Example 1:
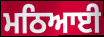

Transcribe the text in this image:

ਮਠਿਆਈ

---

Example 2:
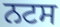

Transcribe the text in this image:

ਨਟਸ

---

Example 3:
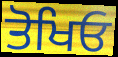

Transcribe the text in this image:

ਤੋਖਿਓ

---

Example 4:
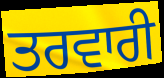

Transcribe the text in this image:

ਤਰਵਾਰੀ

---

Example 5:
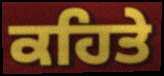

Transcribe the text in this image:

ਕਹਿਤੇ